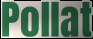
Pollat